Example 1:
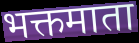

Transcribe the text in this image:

भक्तमाता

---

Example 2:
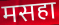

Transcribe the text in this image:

मसहा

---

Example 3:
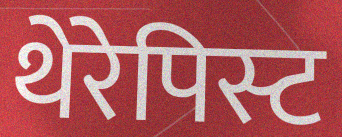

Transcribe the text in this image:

थेरेपिस्‍ट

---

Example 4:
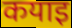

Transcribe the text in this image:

कयाइ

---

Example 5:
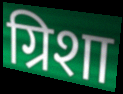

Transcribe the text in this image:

ग्रिशा